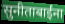
सुनीताबाईंना